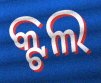
କ୍ଟଲ